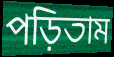
পড়িতাম